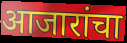
आजारांचा